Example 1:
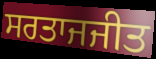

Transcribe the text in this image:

ਸਰਤਾਜਜੀਤ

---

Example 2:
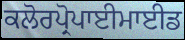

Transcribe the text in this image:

ਕਲੋਰਪ੍ਰੋਪਾਈਮਾਈਡ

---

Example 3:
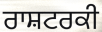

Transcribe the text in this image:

ਰਾਸ਼ਟਰਕੀ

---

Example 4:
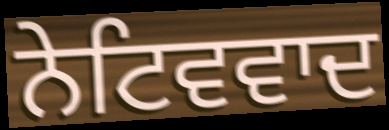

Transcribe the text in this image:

ਨੇਟਿਵਵਾਦ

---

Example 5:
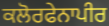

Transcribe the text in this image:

ਕਲੋਰਫੇਨਾਪੀਰ